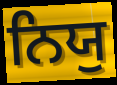
ਨਿਯੁ